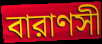
বারাণসী